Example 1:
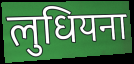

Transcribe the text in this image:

लुधियना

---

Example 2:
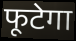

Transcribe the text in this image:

फूटेगा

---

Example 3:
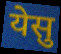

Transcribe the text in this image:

येसु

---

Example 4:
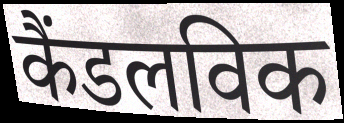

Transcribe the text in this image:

कैंडलविक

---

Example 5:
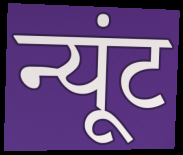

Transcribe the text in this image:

न्यूंट